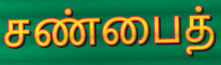
சண்பைத்